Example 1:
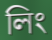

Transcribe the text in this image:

লিং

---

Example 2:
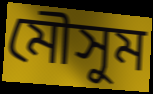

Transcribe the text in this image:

মৌসুম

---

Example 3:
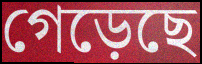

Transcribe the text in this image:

গেড়েছে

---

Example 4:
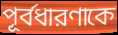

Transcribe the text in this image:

পূর্বধারণাকে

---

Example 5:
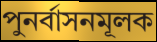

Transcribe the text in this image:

পুনর্বাসনমূলক